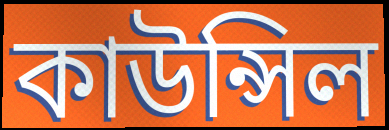
কাউন্সিল